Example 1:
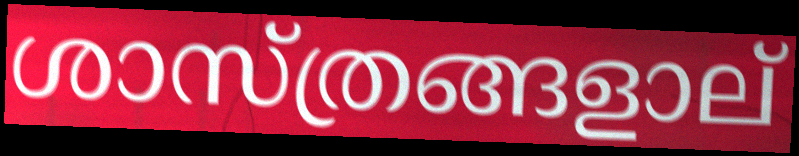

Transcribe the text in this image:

ശാസ്ത്രങ്ങളാല്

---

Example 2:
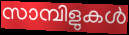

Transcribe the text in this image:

സാമ്പിളുകൾ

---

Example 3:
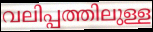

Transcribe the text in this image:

വലിപ്പത്തിലുള്ള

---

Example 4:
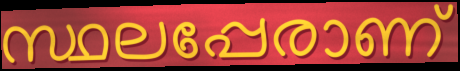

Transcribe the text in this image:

സ്ഥലപ്പേരാണ്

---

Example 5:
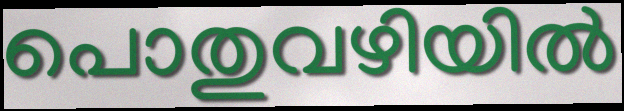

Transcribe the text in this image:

പൊതുവഴിയിൽ